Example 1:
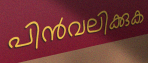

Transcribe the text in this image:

പിൻവലിക്കുക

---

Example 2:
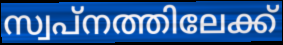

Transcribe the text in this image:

സ്വപ്നത്തിലേക്ക്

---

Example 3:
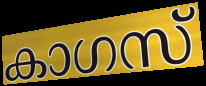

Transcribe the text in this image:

കാഗസ്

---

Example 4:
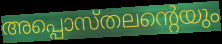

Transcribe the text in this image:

അപ്പൊസ്തലന്റെയും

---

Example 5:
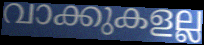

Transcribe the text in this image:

വാക്കുകളല്ല